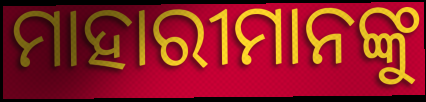
ମାହାରୀମାନଙ୍କୁ